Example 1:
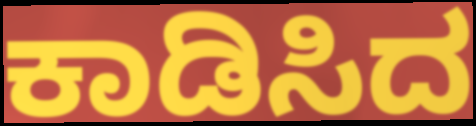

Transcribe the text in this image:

ಕಾಡಿಸಿದ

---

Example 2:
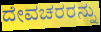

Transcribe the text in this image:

ದೇವಚರರನ್ನು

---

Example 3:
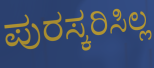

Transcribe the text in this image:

ಪುರಸ್ಕರಿಸಿಲ್ಲ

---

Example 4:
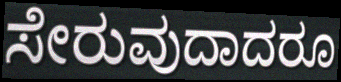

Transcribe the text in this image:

ಸೇರುವುದಾದರೂ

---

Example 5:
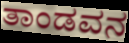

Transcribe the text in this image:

ತಾಂಡವನ